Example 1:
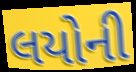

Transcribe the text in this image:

લયોની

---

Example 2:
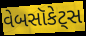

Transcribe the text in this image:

વેબસૉકેટ્સ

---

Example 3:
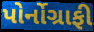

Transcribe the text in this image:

પોર્નોગ્રાફી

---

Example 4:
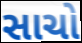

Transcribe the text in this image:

સાચો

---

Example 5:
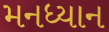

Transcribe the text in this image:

મનધ્યાન